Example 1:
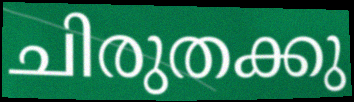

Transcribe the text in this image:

ചിരുതക്കു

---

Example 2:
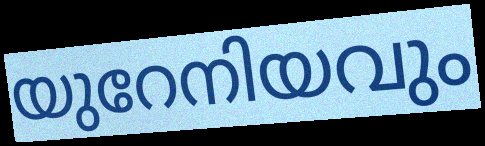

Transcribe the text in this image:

യുറേനിയവും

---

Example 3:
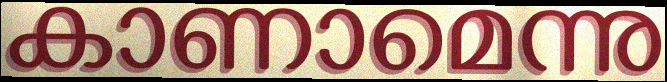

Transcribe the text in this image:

കാണാമെന്നു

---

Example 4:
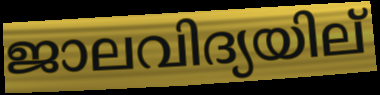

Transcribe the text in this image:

ജാലവിദ്യയില്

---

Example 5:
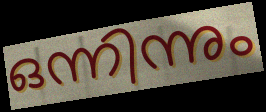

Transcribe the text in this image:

ഒന്നിന്നും